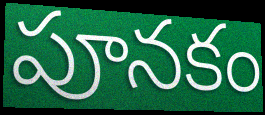
పూనకం